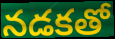
నడకతో